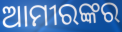
ଆମୀରଙ୍କର